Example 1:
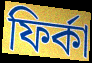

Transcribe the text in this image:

ফির্কা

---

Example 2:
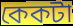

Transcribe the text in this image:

কেকটা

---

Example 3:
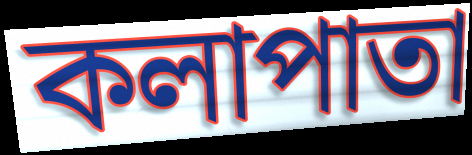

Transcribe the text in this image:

কলাপাতা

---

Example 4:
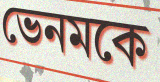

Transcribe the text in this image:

ভেনমকে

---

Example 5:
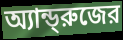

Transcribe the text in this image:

অ্যান্ড্‌রুজের